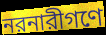
নরনারীগণে